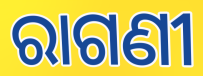
ରାଗଣୀ